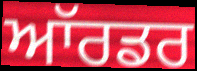
ਆੱਰਡਰ